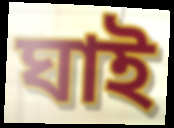
ঘাই